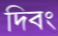
দিবং